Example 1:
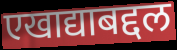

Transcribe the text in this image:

एखाद्याबद्दल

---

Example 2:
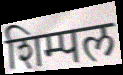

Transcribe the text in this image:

शिम्पल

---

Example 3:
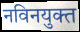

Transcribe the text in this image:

नविनयुक्त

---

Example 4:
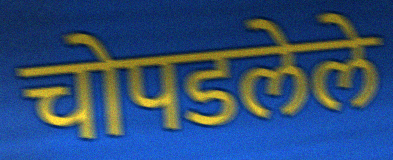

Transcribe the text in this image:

चोपडलेले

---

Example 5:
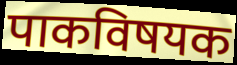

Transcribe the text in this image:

पाकविषयक